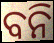
ବନି